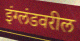
इंग्लंडवरील